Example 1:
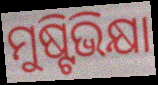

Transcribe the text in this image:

ମୁଷ୍ଟିଭିକ୍ଷା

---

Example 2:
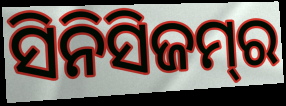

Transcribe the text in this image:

ସିନିସିଜମ୍‌ର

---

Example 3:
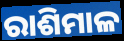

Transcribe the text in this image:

ରାଶିମାଳ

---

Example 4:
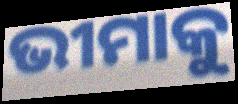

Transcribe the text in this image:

ଭୀମାକୁ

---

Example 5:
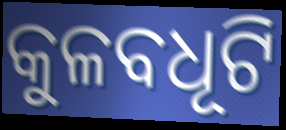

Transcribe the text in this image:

କୁଳବଧୂଟି